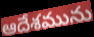
ఆదేశమును